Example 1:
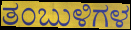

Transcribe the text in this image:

ತಂಬುಳಿಗಳ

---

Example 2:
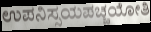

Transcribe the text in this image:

ಉಪನಿಸ್ಸಯಪಚ್ಚಯೋತಿ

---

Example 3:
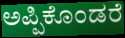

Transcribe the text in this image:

ಅಪ್ಪಿಕೊಂಡರೆ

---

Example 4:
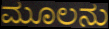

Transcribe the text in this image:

ಮೂಲನು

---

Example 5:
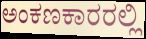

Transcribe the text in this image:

ಅಂಕಣಕಾರರಲ್ಲಿ